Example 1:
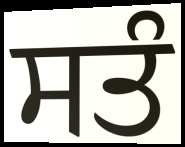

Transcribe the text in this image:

ਸਤੰ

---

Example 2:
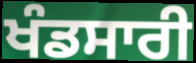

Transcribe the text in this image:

ਖੰਡਸਾਰੀ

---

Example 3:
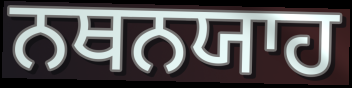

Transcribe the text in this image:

ਨਥਨਯਾਹ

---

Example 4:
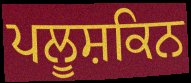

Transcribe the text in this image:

ਪਲੂਸ਼ਕਿਨ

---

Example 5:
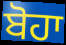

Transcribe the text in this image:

ਬੋਹਾ